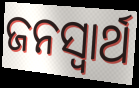
ଜନସ୍ଵାର୍ଥ